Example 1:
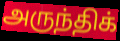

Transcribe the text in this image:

அருந்திக்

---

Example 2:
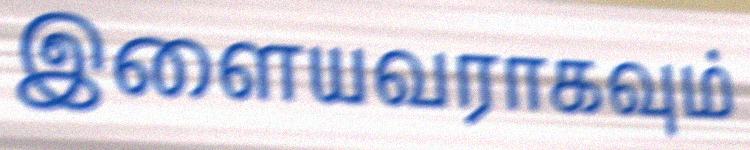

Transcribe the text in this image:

இளையவராகவும்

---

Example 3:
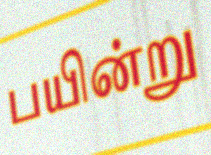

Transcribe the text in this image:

பயின்று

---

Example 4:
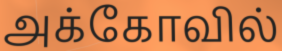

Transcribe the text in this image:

அக்கோவில்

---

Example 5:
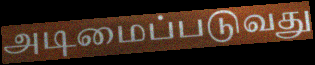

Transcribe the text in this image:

அடிமைப்படுவது